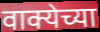
वाक्येच्या